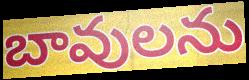
బావులను